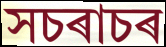
সচৰাচৰ